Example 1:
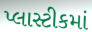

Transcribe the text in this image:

પ્લાસ્ટીકમાં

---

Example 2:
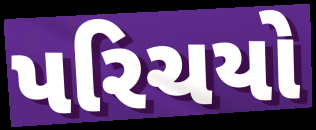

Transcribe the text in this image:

પરિચયો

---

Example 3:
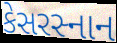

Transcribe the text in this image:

કેસરસ્નાન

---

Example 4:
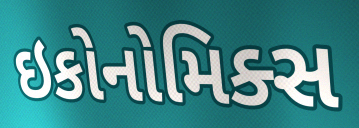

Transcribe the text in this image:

ઇકોનોમિક્સ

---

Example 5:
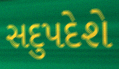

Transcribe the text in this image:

સદુપદેશે